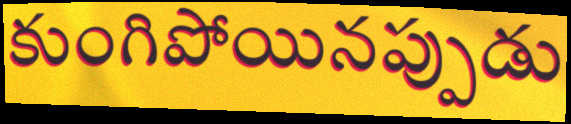
కుంగిపోయినప్పుడు